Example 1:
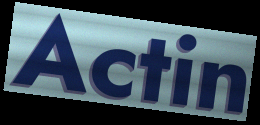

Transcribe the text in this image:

Actin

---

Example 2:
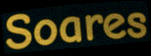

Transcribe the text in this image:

Soares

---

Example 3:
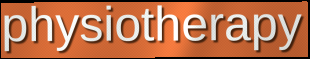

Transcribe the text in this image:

physiotherapy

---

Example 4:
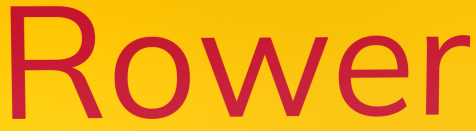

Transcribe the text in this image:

Rower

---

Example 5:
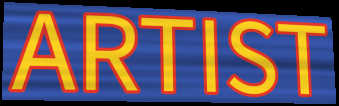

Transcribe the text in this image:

ARTIST